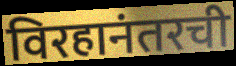
विरहानंतरची